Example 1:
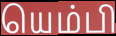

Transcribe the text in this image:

யெம்பி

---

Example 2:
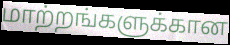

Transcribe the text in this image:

மாற்றங்களுக்கான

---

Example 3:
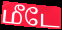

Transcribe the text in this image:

மீடே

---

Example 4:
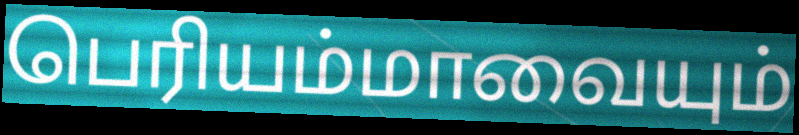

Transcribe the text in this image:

பெரியம்மாவையும்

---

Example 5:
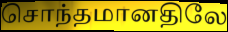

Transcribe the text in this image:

சொந்தமானதிலே